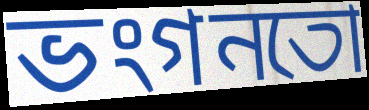
ভংগনতো